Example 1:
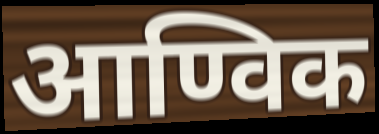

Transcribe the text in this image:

आण्विक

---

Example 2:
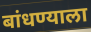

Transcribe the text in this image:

बांधण्याला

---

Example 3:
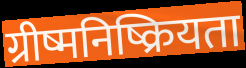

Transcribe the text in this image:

ग्रीष्मनिष्क्रियता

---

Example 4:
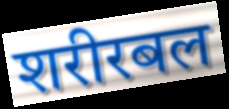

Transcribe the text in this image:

शरीरबल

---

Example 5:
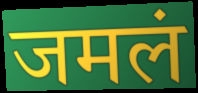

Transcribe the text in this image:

जमलं